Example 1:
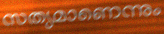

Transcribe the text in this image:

സത്യമാണെന്നും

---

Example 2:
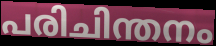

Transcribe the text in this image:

പരിചിന്തനം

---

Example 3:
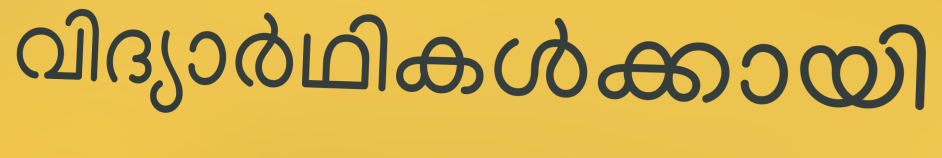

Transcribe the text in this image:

വിദ്യാർഥികൾക്കായി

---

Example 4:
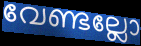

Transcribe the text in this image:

വേണ്ടല്ലോ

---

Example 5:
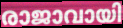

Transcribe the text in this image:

രാജാവായി